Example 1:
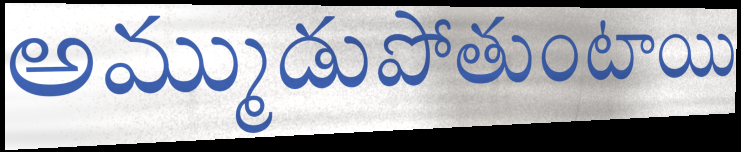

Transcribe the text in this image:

అమ్ముడుపోతుంటాయి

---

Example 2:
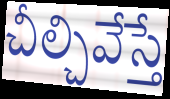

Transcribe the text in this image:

చీల్చివేస్తే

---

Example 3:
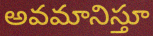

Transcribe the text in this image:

అవమానిస్తూ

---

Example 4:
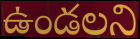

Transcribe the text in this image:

ఉండలని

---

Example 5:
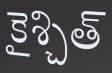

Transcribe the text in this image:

కైశ్చిత్